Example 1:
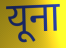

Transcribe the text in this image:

यूना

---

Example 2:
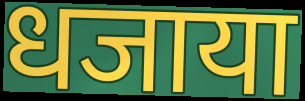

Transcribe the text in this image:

धजाया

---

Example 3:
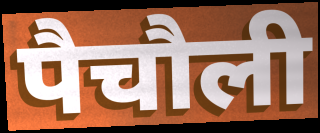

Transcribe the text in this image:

पैचौली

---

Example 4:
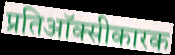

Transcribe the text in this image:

प्रतिऑक्सीकारक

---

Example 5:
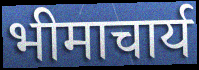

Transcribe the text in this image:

भीमाचार्य